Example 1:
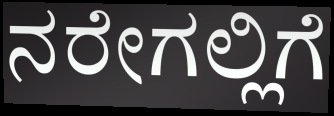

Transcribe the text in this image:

ನರೇಗಲ್ಲಿಗೆ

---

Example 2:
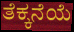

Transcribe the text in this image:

ತೆಕ್ಕನೆಯೆ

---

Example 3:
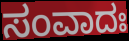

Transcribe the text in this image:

ಸಂವಾದಃ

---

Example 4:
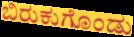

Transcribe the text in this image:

ಬಿರುಕುಗೊಂಡು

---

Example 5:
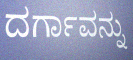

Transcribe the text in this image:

ದರ್ಗಾವನ್ನು